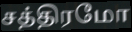
சத்திரமோ